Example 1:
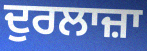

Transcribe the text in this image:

ਦੁਰਲਾਜ਼ਾ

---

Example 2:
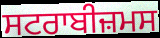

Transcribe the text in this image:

ਸਟਰਾਬੀਜ਼ਮਸ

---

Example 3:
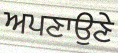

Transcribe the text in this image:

ਅਪਣਾਉਣੇ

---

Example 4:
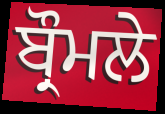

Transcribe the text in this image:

ਬ੍ਰੌਮਲੇ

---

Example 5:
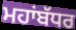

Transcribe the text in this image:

ਮਹਾਂਬੱਧਰ